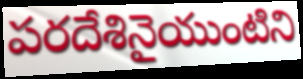
పరదేశినైయుంటిని